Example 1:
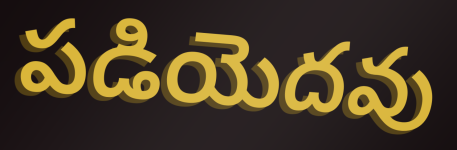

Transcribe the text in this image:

పడియెదవు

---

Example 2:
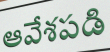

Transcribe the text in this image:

ఆవేశపడి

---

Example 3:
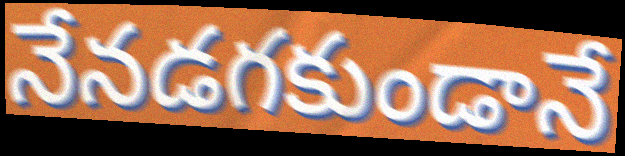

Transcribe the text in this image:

నేనడగకుండానే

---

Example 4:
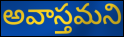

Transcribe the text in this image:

అవాస్తమని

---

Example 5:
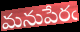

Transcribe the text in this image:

మనుపేరఁ